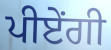
ਪੀਏਂਗੀ